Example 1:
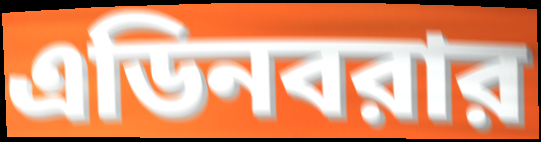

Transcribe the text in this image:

এডিনবরার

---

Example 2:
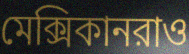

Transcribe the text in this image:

মেক্সিকানরাও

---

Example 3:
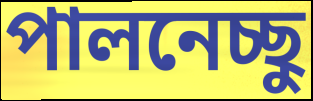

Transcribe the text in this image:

পালনেচ্ছু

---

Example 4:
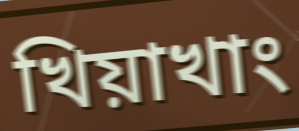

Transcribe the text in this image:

খিয়াখাং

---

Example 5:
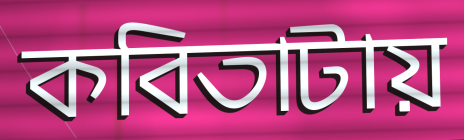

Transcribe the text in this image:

কবিতাটায়